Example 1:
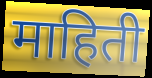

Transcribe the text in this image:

माहिती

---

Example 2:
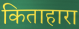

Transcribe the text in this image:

किताहारा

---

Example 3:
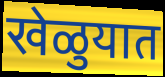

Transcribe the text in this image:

खेळुयात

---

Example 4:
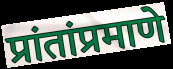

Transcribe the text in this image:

प्रांतांप्रमाणे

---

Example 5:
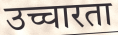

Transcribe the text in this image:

उच्चारता